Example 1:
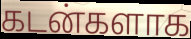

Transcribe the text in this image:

கடன்களாக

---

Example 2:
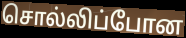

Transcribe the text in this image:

சொல்லிப்போன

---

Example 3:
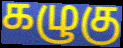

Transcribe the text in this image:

கழுகு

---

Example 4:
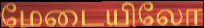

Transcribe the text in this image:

மேடையிலோ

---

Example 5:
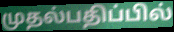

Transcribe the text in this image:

முதல்பதிப்பில்